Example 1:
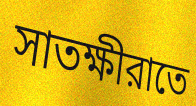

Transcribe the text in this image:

সাতক্ষীরাতে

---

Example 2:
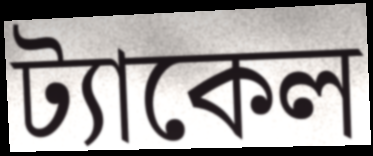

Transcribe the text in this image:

ট্যাকেল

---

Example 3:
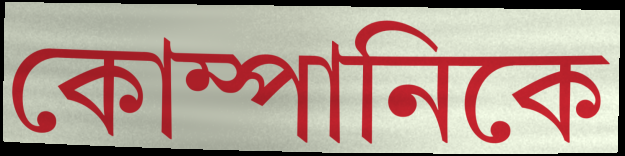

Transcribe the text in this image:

কোম্পানিকে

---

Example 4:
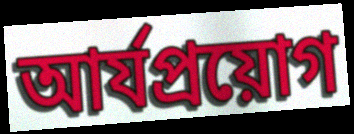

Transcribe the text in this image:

আর্যপ্রয়োগ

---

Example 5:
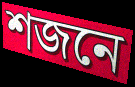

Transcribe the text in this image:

শজনে